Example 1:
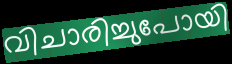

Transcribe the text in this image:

വിചാരിച്ചുപോയി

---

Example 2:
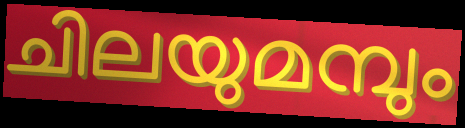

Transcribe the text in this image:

ചിലയുമമ്പും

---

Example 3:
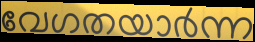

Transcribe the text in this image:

വേഗതയാർന്ന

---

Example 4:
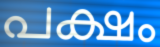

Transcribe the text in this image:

പക്ഷം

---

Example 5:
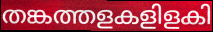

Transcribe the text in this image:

തങ്കത്തളകളിളകി